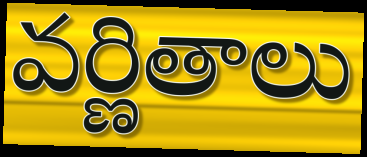
వర్ణితాలు